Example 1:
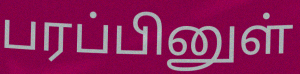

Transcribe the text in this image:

பரப்பினுள்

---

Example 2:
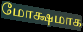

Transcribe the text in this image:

மோக்ஷமாக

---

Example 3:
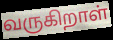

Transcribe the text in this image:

வருகிறாள்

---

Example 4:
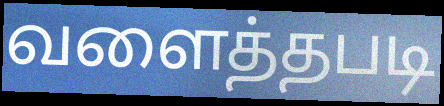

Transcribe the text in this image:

வளைத்தபடி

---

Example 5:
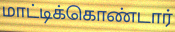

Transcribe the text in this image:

மாட்டிக்கொண்டார்